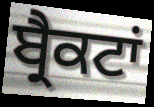
ਬ੍ਰੈਕਟਾਂ